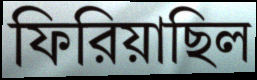
ফিরিয়াছিল